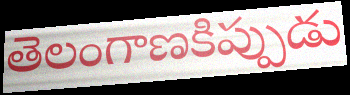
తెలంగాణకిప్పుడు